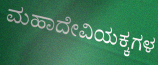
ಮಹಾದೇವಿಯಕ್ಕಗಳ